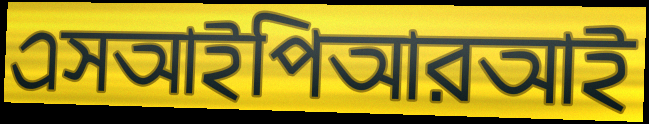
এসআইপিআরআই